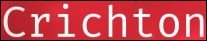
Crichton